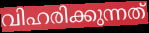
വിഹരിക്കുന്നത്